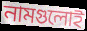
নামগুলোই